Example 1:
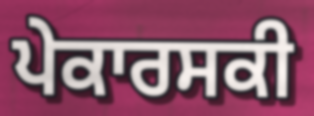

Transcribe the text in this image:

ਪੇਕਾਰਸਕੀ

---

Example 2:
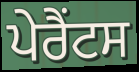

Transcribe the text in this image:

ਪੇਰੈਂਟਸ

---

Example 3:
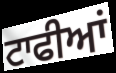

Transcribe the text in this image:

ਟਾਫੀਆਂ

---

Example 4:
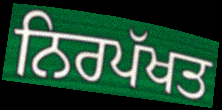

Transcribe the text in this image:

ਨਿਰਪੱਖਤ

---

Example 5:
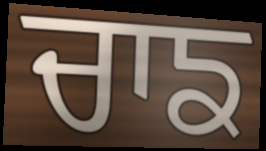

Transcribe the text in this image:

ਚਾਙ